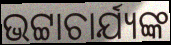
ଭଟ୍ଟାଚାର୍ଯ୍ୟଙ୍କ